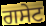
ਗਸੇਟ